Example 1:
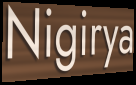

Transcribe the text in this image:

Nigirya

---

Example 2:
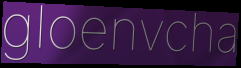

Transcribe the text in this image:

gloenvcha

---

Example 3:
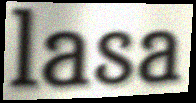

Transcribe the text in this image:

lasa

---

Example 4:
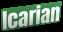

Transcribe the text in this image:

Icarian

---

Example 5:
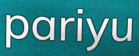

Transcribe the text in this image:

pariyu